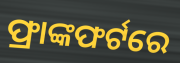
ଫ୍ରାଙ୍କଫର୍ଟରେ